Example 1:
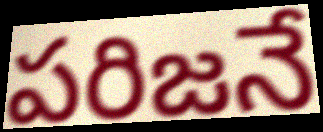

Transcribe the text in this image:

పరిజనే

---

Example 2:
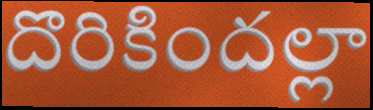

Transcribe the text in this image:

దొరికిందల్లా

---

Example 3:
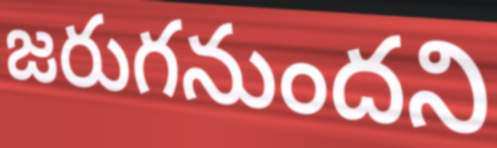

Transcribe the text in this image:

జరుగనుందని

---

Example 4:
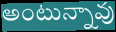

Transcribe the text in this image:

అంటున్నావు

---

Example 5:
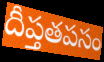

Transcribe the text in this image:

దీప్తతపసం